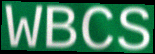
WBCS